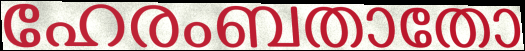
ഹേരംബതാതോ